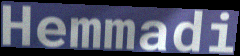
Hemmadi